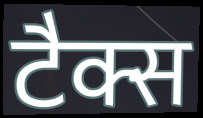
टैक्स